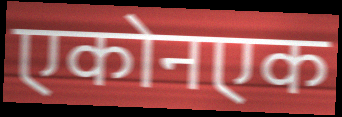
एकोनएक